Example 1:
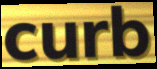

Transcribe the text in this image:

curb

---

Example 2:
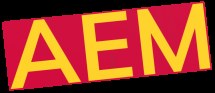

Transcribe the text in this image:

AEM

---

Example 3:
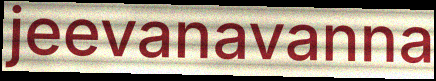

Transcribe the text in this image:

jeevanavanna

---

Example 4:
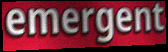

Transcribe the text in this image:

emergent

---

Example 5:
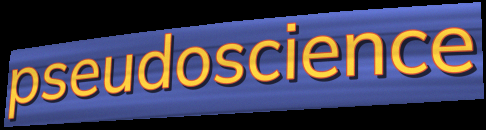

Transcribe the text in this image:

pseudoscience